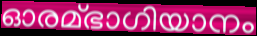
ഓരമ്ഭാഗിയാനം